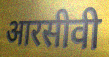
आरसीवी